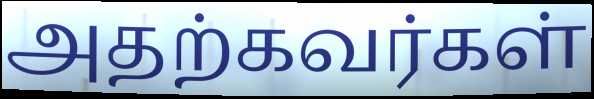
அதற்கவர்கள்